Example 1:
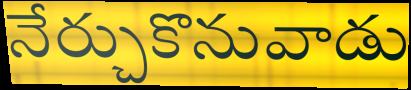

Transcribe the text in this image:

నేర్చుకొనువాడు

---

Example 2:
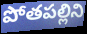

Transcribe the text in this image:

పోతపల్లిని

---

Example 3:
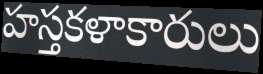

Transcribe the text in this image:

హస్తకళాకారులు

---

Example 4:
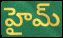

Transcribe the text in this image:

హైమ్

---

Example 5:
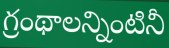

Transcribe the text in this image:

గ్రంథాలన్నింటినీ